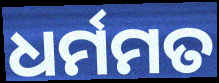
ଧର୍ମମତ